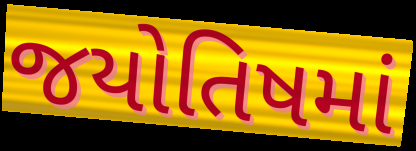
જયોતિષમાં